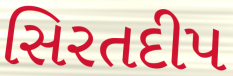
સિરતદીપ